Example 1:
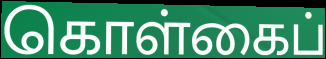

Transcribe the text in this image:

கொள்கைப்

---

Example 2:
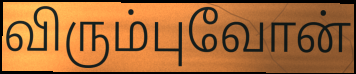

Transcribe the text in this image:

விரும்புவோன்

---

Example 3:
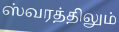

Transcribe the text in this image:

ஸ்வரத்திலும்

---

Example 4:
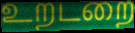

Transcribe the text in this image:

உறடறை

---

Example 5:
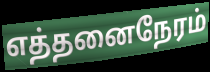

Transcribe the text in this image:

எத்தனைநேரம்